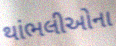
થાંભલીઓના